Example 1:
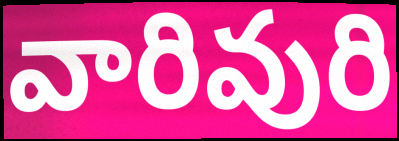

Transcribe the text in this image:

వారివురి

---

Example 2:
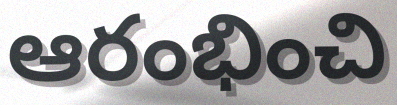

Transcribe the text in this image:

ఆరంభించి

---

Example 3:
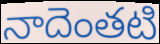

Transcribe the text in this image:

నాదెంతటి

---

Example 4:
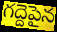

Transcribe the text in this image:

గద్దెపైన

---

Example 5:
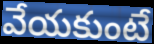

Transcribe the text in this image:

వేయకుంటే